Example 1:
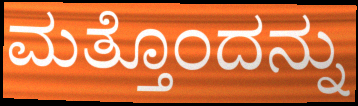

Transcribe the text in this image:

ಮತ್ತೊಂದನ್ನು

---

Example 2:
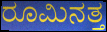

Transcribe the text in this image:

ರೂಮಿನತ್ತ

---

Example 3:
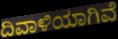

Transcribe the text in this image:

ದಿವಾಳಿಯಾಗಿವೆ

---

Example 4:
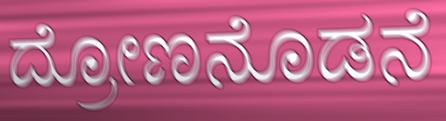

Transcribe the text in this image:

ದ್ರೋಣನೊಡನೆ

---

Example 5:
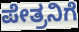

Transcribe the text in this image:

ಪೇತ್ರನಿಗೆ